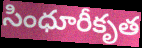
సింధూరీకృత